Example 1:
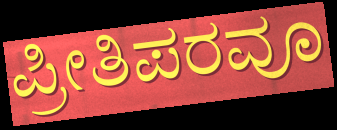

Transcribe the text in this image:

ಪ್ರೀತಿಪರವೂ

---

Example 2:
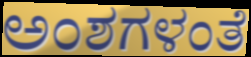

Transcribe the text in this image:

ಅಂಶಗಳಂತೆ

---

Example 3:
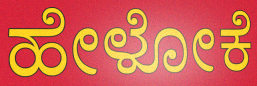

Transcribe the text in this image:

ಹೇಳೋಕೆ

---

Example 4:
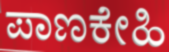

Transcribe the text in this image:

ಪಾಣಕೇಹಿ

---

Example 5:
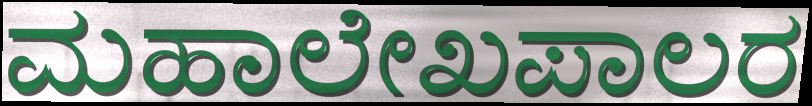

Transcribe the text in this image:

ಮಹಾಲೇಖಪಾಲರ